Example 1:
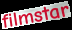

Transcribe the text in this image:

filmstar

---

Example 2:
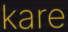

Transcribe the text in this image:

kare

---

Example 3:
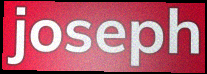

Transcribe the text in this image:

joseph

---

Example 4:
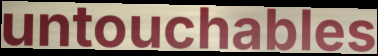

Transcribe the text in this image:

untouchables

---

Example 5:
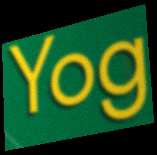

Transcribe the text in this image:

Yog